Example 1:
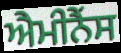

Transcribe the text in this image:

ਐਮੀਨੈਂਸ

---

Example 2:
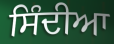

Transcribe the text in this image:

ਸਿੰਦੀਆ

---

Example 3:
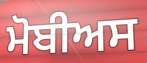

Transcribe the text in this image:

ਮੋਬੀਅਸ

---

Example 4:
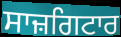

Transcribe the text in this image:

ਸਾਜ਼ਗਿਟਾਰ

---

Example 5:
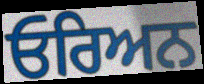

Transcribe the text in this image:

ਓਰਿਅਨ